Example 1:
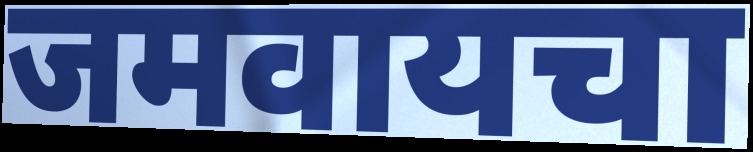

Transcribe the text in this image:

जमवायचा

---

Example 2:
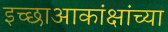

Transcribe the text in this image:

इच्छाआकांक्षांच्या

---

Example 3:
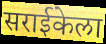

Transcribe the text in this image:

सराईकेला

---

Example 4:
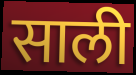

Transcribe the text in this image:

साली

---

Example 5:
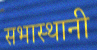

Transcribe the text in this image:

सभास्थानी